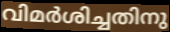
വിമർശിച്ചതിനു